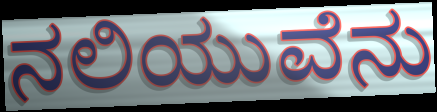
ನಲಿಯುವೆನು